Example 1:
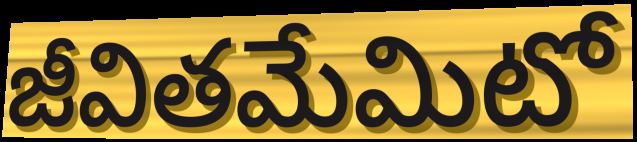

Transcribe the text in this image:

జీవితమేమిటో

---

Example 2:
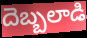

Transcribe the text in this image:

దెబ్బలాడి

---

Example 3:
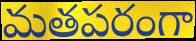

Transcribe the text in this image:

మతపరంగా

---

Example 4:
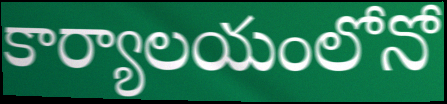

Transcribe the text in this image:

కార్యాలయంలోనో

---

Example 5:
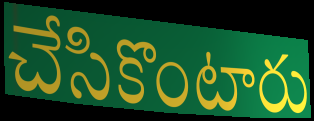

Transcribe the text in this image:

చేసికొంటారు